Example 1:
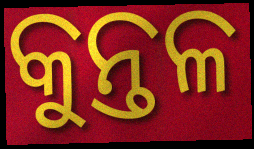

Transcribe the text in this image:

କୁନ୍ତଳ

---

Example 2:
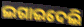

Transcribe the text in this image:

ଲଗାଇଦେଲି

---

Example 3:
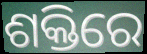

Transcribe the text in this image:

ଶକ୍ତିରେ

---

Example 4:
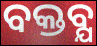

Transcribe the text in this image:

ବକ୍ତବ୍ଯ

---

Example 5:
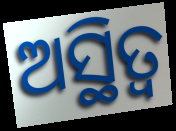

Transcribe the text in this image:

ଅସ୍ଥିତ୍ୱ